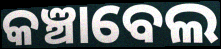
କଞ୍ଚାବେଲ